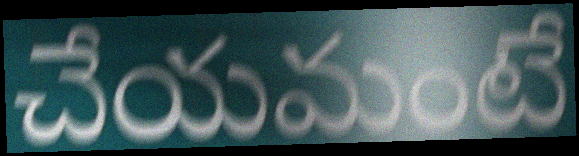
చేయమంటే